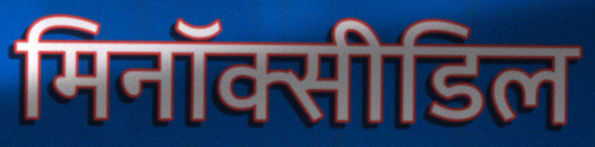
मिनॉक्सीडिल